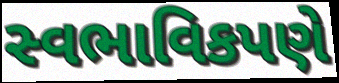
સ્વભાવિકપણે